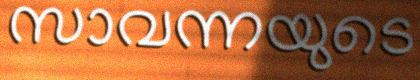
സാവന്നയുടെ